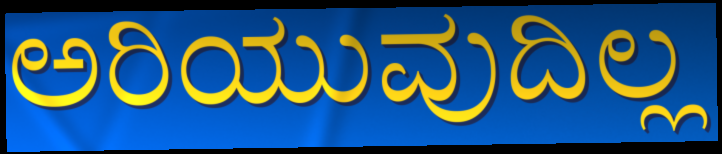
ಅರಿಯುವುದಿಲ್ಲ